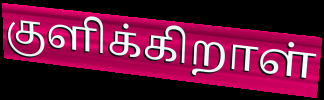
குளிக்கிறாள்